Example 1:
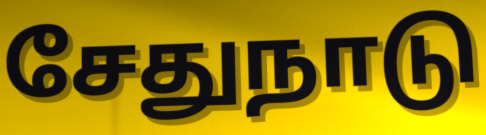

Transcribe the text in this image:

சேதுநாடு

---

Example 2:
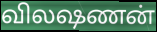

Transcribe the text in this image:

விலஷணன்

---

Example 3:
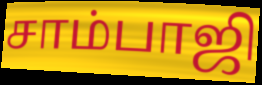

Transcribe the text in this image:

சாம்பாஜி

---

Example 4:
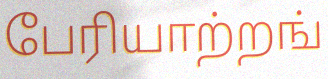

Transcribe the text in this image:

பேரியாற்றங்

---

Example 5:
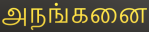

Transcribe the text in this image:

அநங்கனை